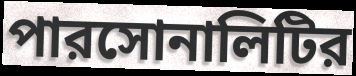
পারসোনালিটির